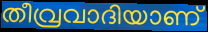
തീവ്രവാദിയാണ്